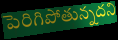
పెరిగిపోతున్నదని